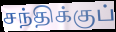
சந்திக்குப்